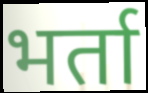
भर्ता